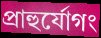
প্রাহুর্যোগং